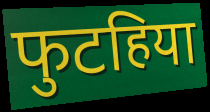
फुटहिया